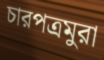
চারপত্রমুরা